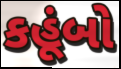
કહૂંબો